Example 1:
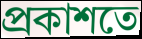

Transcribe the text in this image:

প্রকাশতে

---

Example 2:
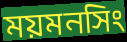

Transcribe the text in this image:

ময়মনসিং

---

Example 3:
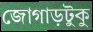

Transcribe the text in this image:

জোগাড়টুকু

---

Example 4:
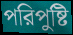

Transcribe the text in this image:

পরিপুষ্টি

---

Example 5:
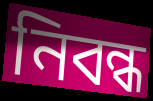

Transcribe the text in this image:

নিবন্ধ